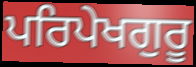
ਪਰਿਪੇਖਗੁਰੂ